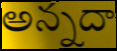
అన్నదా